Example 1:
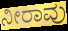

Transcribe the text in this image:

ನೀರಾವು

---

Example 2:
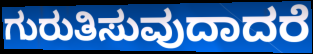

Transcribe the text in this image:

ಗುರುತಿಸುವುದಾದರೆ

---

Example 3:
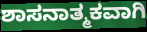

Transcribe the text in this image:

ಶಾಸನಾತ್ಮಕವಾಗಿ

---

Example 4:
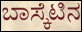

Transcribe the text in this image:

ಬಾಸ್ಕೆಟಿನ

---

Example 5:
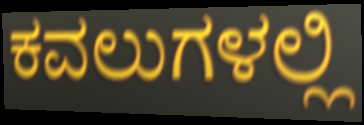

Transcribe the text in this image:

ಕವಲುಗಳಲ್ಲಿ